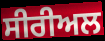
ਸੀਰੀਅਲ